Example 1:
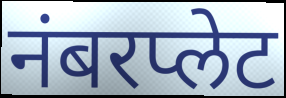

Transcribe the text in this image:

नंबरप्लेट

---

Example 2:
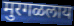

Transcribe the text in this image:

मुरगळलाय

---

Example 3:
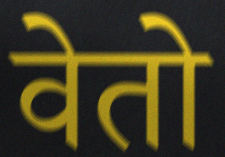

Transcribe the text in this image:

वेतो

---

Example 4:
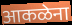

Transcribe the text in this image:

आकळेना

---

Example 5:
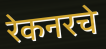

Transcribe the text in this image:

रेकनरचे